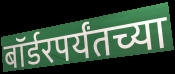
बॉर्डरपर्यंतच्या